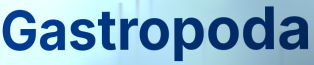
Gastropoda